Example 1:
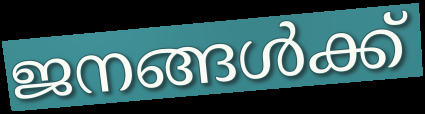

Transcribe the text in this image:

ജനങ്ങൾക്ക്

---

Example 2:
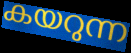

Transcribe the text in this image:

കയറുന്ന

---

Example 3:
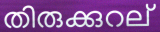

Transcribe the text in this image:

തിരുക്കുറല്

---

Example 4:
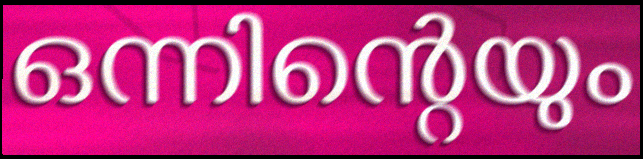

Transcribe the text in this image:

ഒന്നിന്റെയും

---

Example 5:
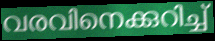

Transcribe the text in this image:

വരവിനെക്കുറിച്ച്